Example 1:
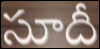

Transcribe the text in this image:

సూదీ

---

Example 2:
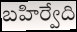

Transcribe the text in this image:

బహిర్వేది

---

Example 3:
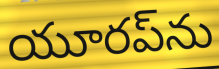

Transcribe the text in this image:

యూరప్‌ను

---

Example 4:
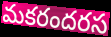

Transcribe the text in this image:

మకరందరస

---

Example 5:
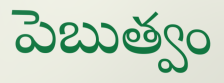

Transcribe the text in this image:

పెబుత్వం